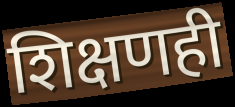
शिक्षणही